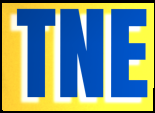
TNE